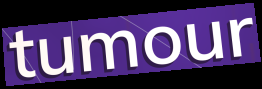
tumour